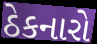
ઠેકનારો